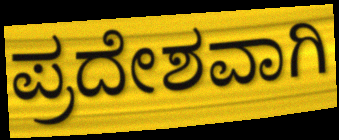
ಪ್ರದೇಶವಾಗಿ